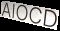
AIOCD